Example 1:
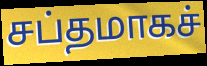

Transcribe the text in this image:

சப்தமாகச்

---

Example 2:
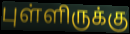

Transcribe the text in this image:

புள்ளிருக்கு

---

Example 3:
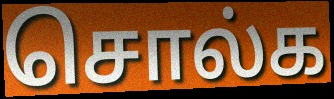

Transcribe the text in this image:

சொல்க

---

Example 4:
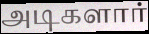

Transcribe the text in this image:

அடிகளார்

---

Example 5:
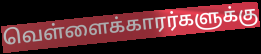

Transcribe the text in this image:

வெள்ளைக்காரர்களுக்கு